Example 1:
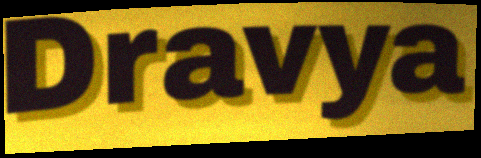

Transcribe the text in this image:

Dravya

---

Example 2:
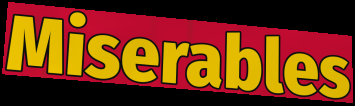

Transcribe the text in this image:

Miserables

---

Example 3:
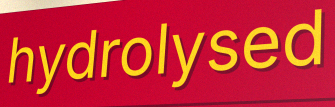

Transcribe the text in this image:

hydrolysed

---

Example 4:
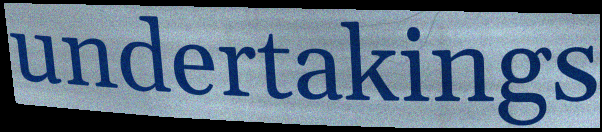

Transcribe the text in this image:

undertakings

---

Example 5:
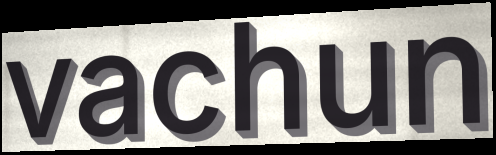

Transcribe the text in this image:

vachun